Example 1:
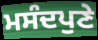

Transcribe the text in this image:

ਮਸੰਦਪੁਣੇ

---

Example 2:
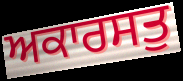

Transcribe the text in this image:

ਅਕਾਰਸਤੁ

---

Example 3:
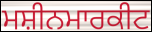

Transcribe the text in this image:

ਮਸ਼ੀਨਮਾਰਕੀਟ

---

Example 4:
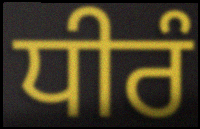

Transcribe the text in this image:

ਧੀਰੰ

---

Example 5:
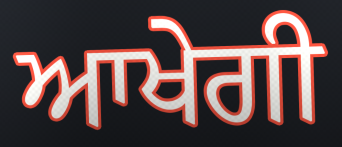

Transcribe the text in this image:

ਆਖੇਗੀ